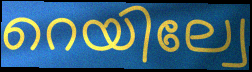
റെയില്വേ